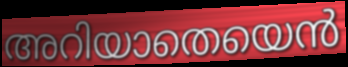
അറിയാതെയെൻ